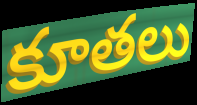
కూతలు